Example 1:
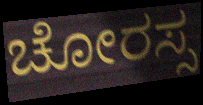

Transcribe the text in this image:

ಚೋರಸ್ಸ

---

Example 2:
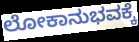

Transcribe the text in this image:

ಲೋಕಾನುಭವಕ್ಕೆ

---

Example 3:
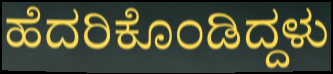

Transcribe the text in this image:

ಹೆದರಿಕೊಂಡಿದ್ದಳು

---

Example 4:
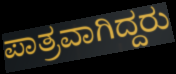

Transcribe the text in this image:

ಪಾತ್ರವಾಗಿದ್ದರು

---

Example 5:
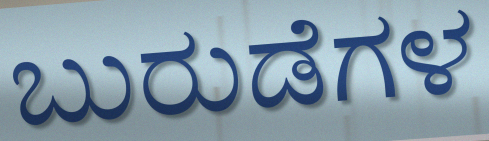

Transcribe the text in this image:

ಬುರುಡೆಗಳ